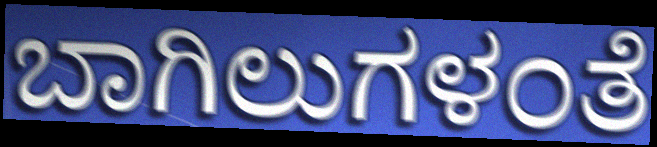
ಬಾಗಿಲುಗಳಂತೆ